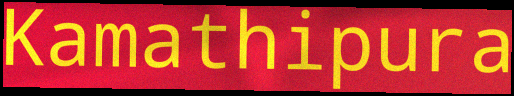
Kamathipura